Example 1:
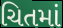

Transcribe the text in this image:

ચિતમાં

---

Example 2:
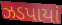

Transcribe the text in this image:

ઝડપાયાં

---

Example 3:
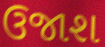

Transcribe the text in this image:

ઉજાશ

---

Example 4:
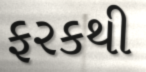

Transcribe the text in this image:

ફરકથી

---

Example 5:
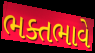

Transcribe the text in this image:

ભક્તભાવે